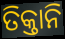
ତିକ୍ତାନି